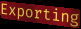
Exporting